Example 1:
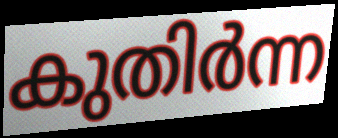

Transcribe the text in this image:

കുതിർന്ന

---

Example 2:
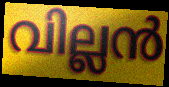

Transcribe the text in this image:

വില്ലൻ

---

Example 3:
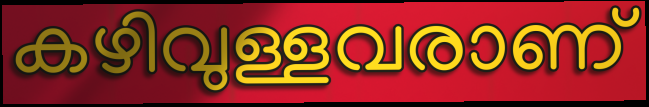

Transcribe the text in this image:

കഴിവുള്ളവരാണ്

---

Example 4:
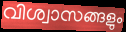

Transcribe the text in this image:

വിശ്വാസങ്ങളും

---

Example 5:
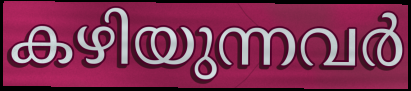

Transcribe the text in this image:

കഴിയുന്നവർ